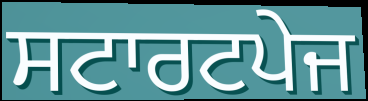
ਸਟਾਰਟਪੇਜ